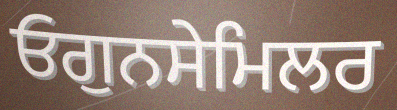
ਓਗੁਨਸੇਮਿਲਰ